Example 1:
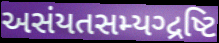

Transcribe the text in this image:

અસંયતસમ્યગ્દ્રષ્ટિ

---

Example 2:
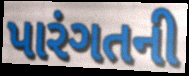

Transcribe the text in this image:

પારંગતની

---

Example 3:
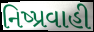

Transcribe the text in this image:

નિષ્પ્રવાહી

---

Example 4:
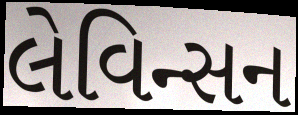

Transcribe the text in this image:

લેવિન્સન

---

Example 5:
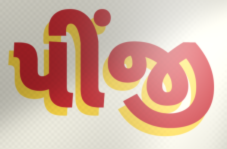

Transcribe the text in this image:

પીંજી